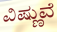
ವಿಷ್ಣುವೆ